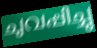
ചുവപ്പിച്ചു